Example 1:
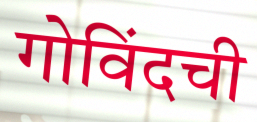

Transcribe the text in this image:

गोविंदची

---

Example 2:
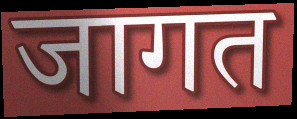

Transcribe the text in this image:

जागत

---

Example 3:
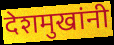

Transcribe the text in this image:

देशमुखांनी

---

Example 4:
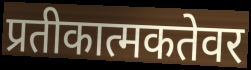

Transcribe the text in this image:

प्रतीकात्मकतेवर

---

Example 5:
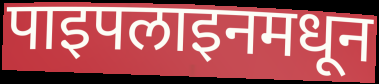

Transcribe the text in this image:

पाइपलाइनमधून